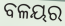
ବଳୟର